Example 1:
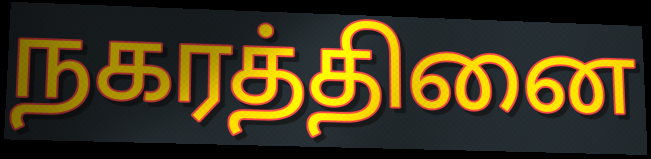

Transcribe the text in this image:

நகரத்தினை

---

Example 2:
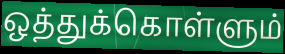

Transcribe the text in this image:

ஒத்துக்கொள்ளும்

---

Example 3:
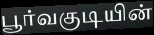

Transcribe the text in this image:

பூர்வகுடியின்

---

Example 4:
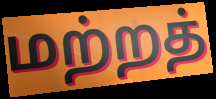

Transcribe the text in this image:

மற்றத்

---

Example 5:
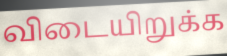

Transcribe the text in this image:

விடையிறுக்க